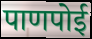
पाणपोई